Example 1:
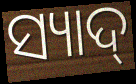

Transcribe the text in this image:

ସ୍ୟାଦ୍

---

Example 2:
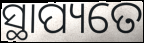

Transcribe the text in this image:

ସ୍ଥାପ୍ୟତେ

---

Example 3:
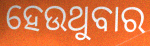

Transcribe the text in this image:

ହେଉଥୁବାର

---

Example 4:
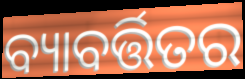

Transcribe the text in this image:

ବ୍ୟାବର୍ତ୍ତିତର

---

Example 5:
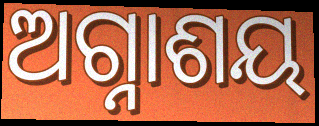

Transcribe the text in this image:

ଅଗ୍ନାଶୟ